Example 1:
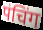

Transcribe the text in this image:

पंचिंग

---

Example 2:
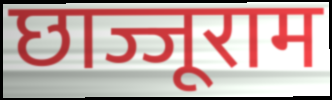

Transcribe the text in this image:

छाज्जूराम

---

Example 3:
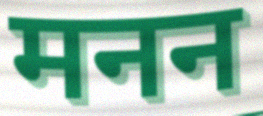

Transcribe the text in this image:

मनन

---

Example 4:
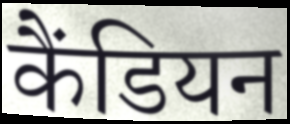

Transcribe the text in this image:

कैंडियन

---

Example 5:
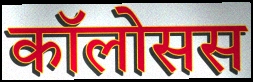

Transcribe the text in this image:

कॉलोसस